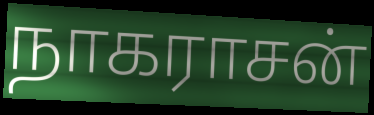
நாகராசன்